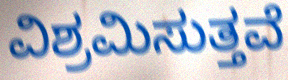
ವಿಶ್ರಮಿಸುತ್ತವೆ